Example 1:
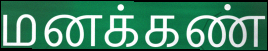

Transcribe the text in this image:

மனக்கண்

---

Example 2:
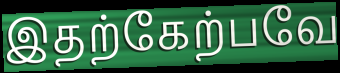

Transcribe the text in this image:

இதற்கேற்பவே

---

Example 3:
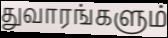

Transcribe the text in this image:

துவாரங்களும்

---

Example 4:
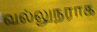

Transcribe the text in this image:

வல்லுநராக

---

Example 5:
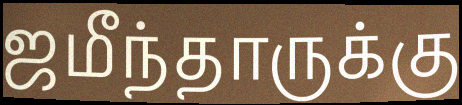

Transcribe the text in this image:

ஜமீந்தாருக்கு